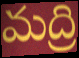
మద్రి